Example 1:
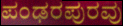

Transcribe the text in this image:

ಪಂಢರಪುರವು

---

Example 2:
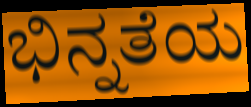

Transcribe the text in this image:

ಭಿನ್ನತೆಯ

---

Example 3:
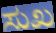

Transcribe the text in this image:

ಸುಖ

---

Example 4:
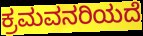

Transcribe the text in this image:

ಕ್ರಮವನರಿಯದೆ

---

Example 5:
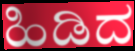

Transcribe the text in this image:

ಹಿಡಿದ